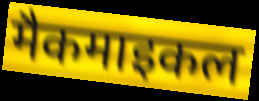
मैकमाइकल